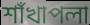
শাঁখাপলা